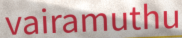
vairamuthu